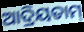
ଆଦ୍ରିୟତାମ୍